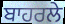
ਬਾਹਰਲੇ